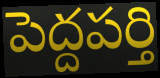
పెద్దపర్తి